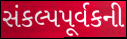
સંકલ્પપૂર્વકની